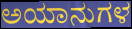
ಅಯಾನುಗಳ